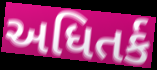
અધિતર્ક